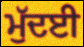
ਮੁੱਦਈ